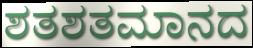
ಶತಶತಮಾನದ